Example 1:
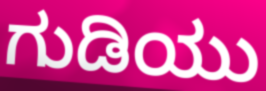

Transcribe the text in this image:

ಗುಡಿಯು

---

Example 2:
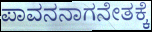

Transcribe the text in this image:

ಪಾವನನಾಗನೇತಕ್ಕೆ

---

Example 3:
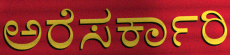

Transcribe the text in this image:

ಅರೆಸರ್ಕಾರಿ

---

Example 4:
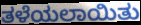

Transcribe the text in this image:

ತಳೆಯಲಾಯಿತು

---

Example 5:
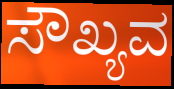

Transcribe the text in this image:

ಸೌಖ್ಯವ